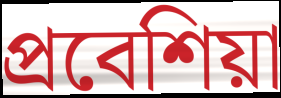
প্রবেশিয়া